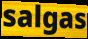
salgas